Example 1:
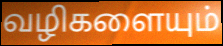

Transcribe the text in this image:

வழிகளையும்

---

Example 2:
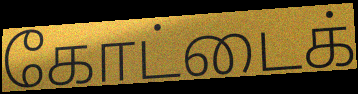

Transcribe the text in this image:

கோட்டைக்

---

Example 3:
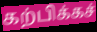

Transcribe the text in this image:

கற்பிக்கச்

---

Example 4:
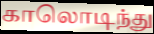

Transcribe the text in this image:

காலொடிந்து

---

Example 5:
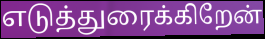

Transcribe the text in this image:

எடுத்துரைக்கிறேன்